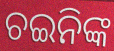
ଚଇନିଙ୍କ